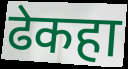
ढेकहा